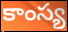
కాంస్య